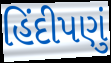
હિંદીપણું